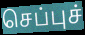
செப்புச்